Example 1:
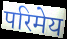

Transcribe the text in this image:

परिमेय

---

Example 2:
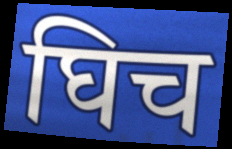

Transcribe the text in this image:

घिच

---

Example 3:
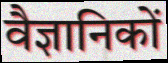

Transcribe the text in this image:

वैज्ञानिकों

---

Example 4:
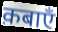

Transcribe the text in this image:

क़बाएँ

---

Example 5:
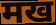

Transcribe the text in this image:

मख